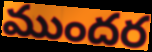
ముందర